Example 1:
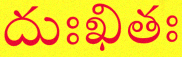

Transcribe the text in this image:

దుఃఖితః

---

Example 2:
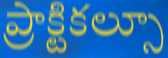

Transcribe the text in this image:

ప్రాక్టికల్సూ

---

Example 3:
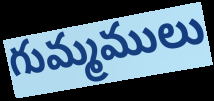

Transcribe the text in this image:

గుమ్మములు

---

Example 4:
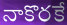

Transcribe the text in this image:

నాకొరకే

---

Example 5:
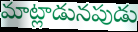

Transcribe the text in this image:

మాట్లాడునపుడు